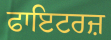
ਫਾਇਟਰਜ਼